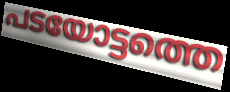
പടയോട്ടത്തെ